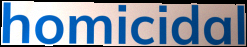
homicidal